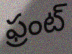
ఫ్రంట్